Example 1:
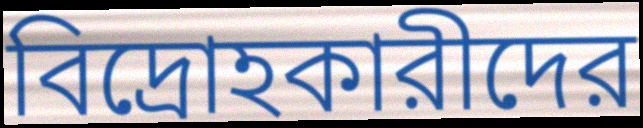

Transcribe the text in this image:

বিদ্রোহকারীদের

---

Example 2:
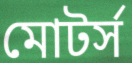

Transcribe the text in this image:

মোটর্স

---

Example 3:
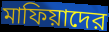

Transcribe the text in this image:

মাফিয়াদের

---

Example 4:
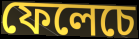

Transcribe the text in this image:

ফেলেচে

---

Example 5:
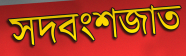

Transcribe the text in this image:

সদবংশজাত